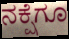
ನಕ್ಷೆಗೂ